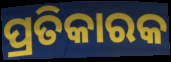
ପ୍ରତିକାରକ